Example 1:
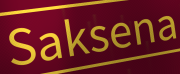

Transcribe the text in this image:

Saksena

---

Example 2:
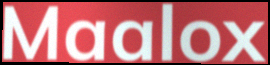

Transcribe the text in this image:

Maalox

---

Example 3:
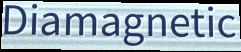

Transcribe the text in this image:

Diamagnetic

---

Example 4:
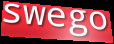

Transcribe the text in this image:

swego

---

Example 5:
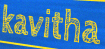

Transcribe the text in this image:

kavitha